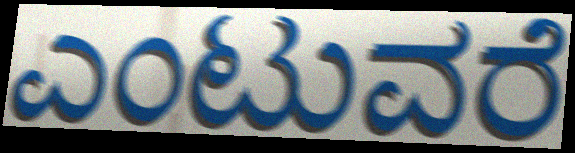
ಎಂಟುವರೆ